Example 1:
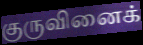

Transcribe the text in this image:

குருவினைக்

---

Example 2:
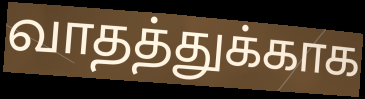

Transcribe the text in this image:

வாதத்துக்காக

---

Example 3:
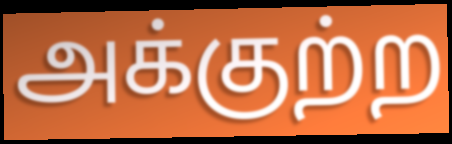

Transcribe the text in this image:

அக்குற்ற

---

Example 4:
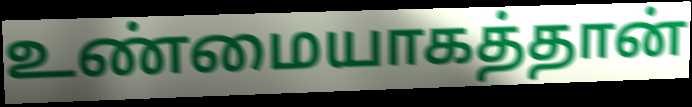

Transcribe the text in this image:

உண்மையாகத்தான்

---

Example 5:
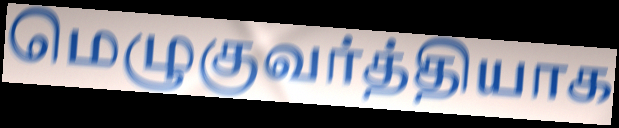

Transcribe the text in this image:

மெழுகுவர்த்தியாக